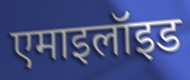
एमाइलॉइड